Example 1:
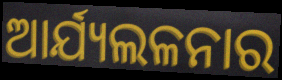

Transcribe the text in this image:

ଆର୍ଯ୍ୟଲଳନାର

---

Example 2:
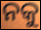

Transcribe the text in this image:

ନକୁ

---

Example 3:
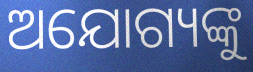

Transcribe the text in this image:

ଅଯୋଗ୍ୟଙ୍କୁ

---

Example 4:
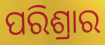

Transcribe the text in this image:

ପରିଶ୍ରାର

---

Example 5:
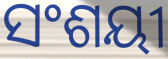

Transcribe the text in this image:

ସଂଶୟୀ